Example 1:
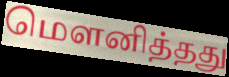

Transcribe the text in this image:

மௌனித்தது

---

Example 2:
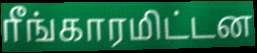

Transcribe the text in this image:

ரீங்காரமிட்டன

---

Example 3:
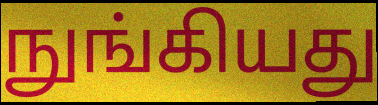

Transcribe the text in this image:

நுங்கியது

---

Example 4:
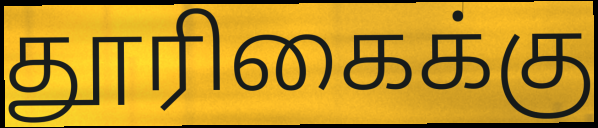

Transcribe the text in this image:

தூரிகைக்கு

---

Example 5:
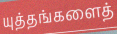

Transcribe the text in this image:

யுத்தங்களைத்